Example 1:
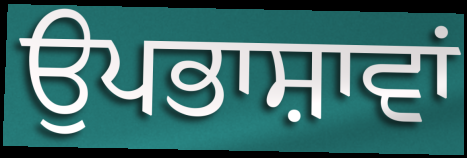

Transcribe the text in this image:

ਉਪਭਾਸ਼ਾਵਾਂ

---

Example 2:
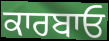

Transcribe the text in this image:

ਕਾਰਬਾਓ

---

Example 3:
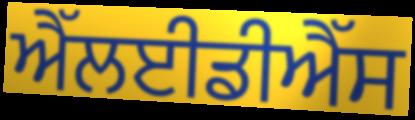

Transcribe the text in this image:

ਐੱਲਈਡੀਐੱਸ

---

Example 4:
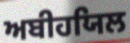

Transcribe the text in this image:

ਅਬੀਹਯਿਲ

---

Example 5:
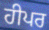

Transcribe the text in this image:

ਹੀਪਰ